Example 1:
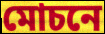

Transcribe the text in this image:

মোচনে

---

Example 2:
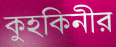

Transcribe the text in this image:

কুহকিনীর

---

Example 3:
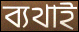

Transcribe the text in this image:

ব্যথাই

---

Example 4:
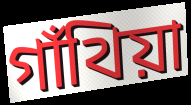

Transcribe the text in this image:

গাঁথিয়া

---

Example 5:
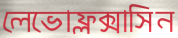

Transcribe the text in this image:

লেভোফ্লক্সাসিন